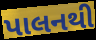
પાલનથી